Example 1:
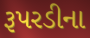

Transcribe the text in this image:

રૂપરડીના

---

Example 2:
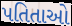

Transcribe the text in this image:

પતિતાઓ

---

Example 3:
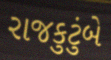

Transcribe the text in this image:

રાજકુટુંબે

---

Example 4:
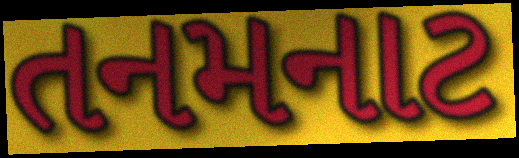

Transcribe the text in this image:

તનમનાટ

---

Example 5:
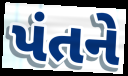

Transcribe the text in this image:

પંતને